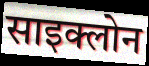
साइक्लोन